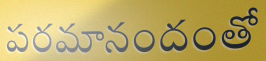
పరమానందంతో